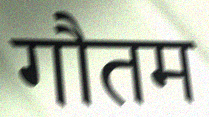
गौतम